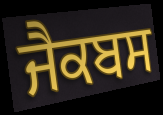
ਜੈਕਬਸ